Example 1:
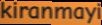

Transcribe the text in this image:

kiranmayi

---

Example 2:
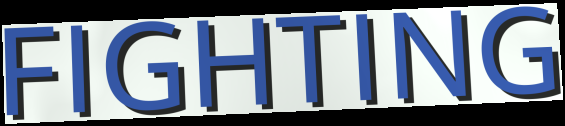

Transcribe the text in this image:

FIGHTING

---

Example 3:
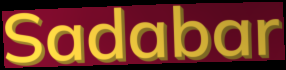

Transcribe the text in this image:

Sadabar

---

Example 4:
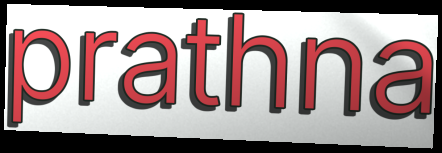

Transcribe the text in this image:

prathna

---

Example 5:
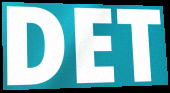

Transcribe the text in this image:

DET